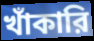
খাঁকারি